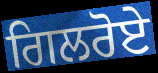
ਗਿਲਰੋਏ